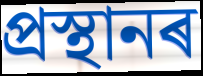
প্ৰস্থানৰ